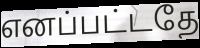
எனப்பட்டதே